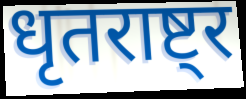
धृतराष्ट्र